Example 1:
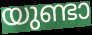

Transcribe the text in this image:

യുണ്ടാ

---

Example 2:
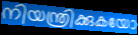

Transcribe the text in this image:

നിയന്ത്രിക്കുകയോ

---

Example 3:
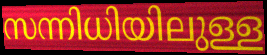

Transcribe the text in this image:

സന്നിധിയിലുള്ള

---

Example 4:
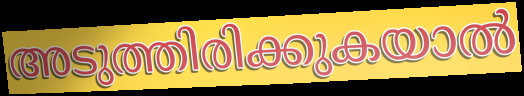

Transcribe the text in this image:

അടുത്തിരിക്കുകയാൽ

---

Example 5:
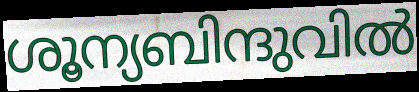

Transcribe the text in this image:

ശൂന്യബിന്ദുവിൽ